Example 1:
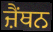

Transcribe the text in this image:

ਜ਼ੈਂਥਨ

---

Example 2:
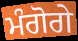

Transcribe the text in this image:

ਮੰਗੋਗੇ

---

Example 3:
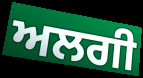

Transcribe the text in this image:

ਅਲਗੀ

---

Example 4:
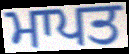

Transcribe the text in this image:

ਮਾਪਤ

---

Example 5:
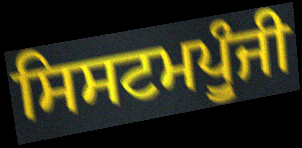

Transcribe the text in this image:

ਸਿਸਟਮਪੂੰਜੀ